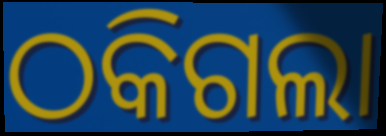
ଠକିଗଲା